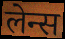
लेन्स